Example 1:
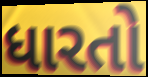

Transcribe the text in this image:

ધારતો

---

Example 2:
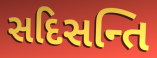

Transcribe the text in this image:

સદિસન્તિ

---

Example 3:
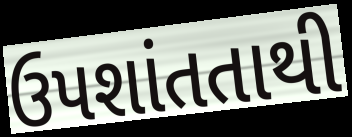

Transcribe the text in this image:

ઉપશાંતતાથી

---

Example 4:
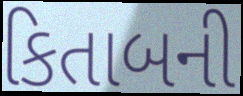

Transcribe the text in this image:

કિતાબની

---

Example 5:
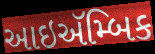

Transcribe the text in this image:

આઇઍમ્બિક